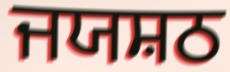
ਜਯਸ਼ਠ